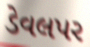
ડેવલપર